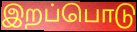
இறப்பொடு